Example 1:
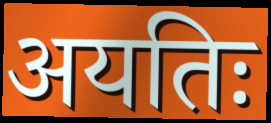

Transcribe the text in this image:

अयतिः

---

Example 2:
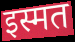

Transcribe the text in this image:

इस्मत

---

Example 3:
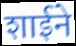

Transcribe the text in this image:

शाईने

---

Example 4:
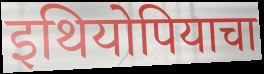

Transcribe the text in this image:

इथियोपियाचा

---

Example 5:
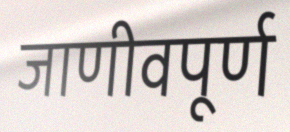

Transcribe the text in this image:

जाणीवपूर्ण